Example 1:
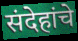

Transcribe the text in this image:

संदेहांचे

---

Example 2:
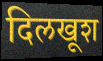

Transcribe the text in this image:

दिलखूश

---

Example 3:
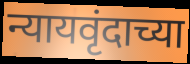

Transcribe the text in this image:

न्यायवृंदाच्या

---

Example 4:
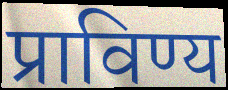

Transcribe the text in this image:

प्राविण्य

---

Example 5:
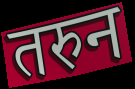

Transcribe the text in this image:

तरुन